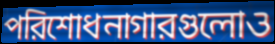
পরিশোধনাগারগুলোও